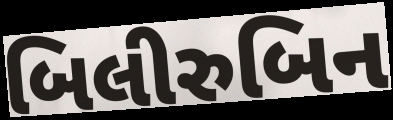
બિલીરુબિન